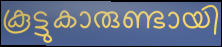
കൂട്ടുകാരുണ്ടായി